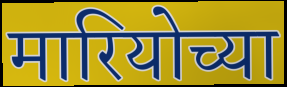
मारियोच्या